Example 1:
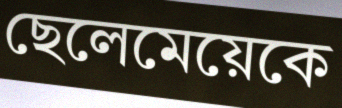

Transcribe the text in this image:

ছেলেমেয়েকে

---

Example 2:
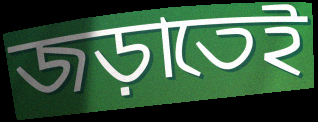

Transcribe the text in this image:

জড়াতেই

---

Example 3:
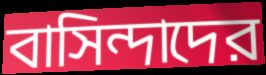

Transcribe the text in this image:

বাসিন্দাদের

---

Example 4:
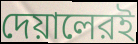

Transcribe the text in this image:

দেয়ালেরই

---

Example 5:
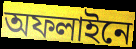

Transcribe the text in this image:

অফলাইনে